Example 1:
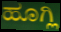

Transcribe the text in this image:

ಹೂಗ್ಲಿ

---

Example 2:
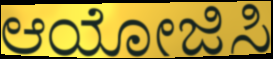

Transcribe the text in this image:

ಆಯೋಜಿಸಿ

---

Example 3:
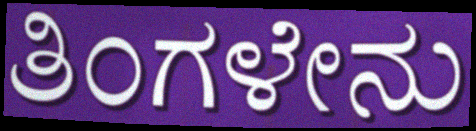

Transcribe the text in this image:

ತಿಂಗಳೇನು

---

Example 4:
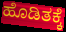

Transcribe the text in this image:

ಹೊಡಿತಕ್ಕೆ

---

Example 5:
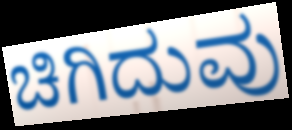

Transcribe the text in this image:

ಚಿಗಿದುವು